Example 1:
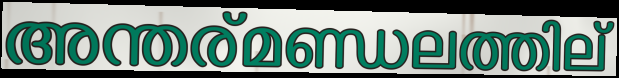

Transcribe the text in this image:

അന്തര്മണ്ഡലത്തില്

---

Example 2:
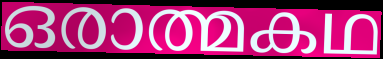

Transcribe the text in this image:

ഒരാത്മകഥ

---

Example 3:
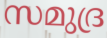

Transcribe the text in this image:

സമുദ്ര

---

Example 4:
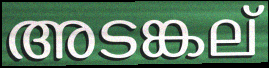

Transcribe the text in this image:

അടങ്കല്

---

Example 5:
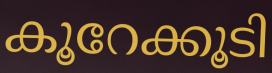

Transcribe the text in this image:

കൂറേക്കൂടി